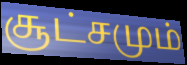
சூட்சமும்